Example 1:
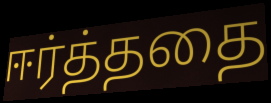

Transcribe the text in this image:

ஈர்த்ததை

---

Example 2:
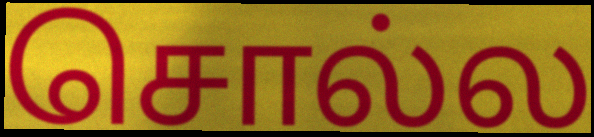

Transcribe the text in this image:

சொல்ல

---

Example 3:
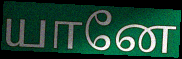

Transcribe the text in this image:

யானே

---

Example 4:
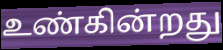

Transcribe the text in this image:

உண்கின்றது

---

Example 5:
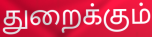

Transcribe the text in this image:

துறைக்கும்